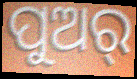
ପୁଅର୍